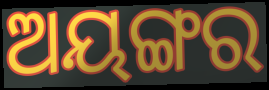
ଅୟଙ୍ଗର